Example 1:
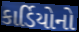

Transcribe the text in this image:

કાર્ડિયોનો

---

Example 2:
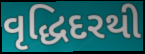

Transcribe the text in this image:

વૃદ્ધિદરથી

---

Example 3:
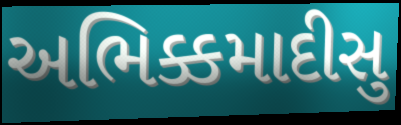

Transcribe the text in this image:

અભિક્કમાદીસુ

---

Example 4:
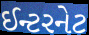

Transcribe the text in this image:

ઈન્ટરનેટ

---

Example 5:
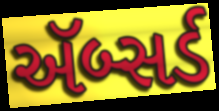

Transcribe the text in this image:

ઍબ્સર્ડ